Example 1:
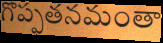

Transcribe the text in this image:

గొప్పతనమంతా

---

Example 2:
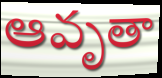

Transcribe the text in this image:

ఆవృతా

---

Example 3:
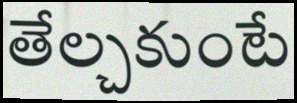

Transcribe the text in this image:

తేల్చకుంటే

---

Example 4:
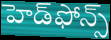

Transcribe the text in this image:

హెడ్‌ఫోన్స్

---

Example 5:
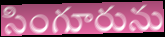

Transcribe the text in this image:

సింగూరును